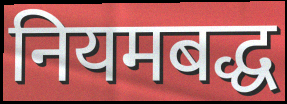
नियमबद्ध